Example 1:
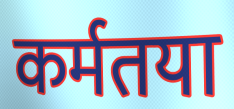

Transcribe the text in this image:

कर्मतया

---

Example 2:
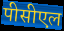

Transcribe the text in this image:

पीसीएल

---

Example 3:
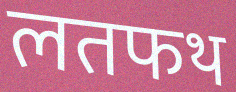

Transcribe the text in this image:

लतफथ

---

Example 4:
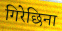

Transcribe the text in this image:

गिरेछिना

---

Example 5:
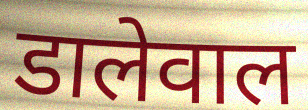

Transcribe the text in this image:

डालेवाल